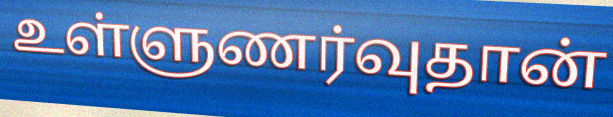
உள்ளுணர்வுதான்